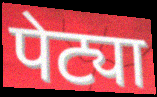
पेट्या